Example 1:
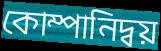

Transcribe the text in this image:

কোম্পানিদ্বয়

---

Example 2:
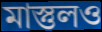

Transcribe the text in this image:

মাস্তুলও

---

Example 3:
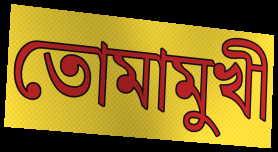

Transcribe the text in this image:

তোমামুখী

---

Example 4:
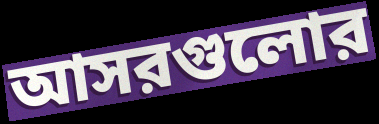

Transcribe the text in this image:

আসরগুলোর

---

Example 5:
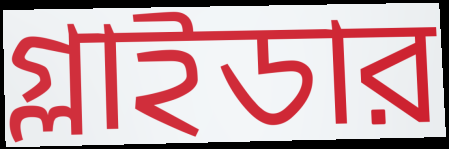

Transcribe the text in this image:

গ্লাইডার